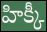
హిక్కీ